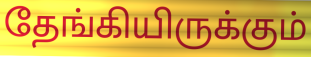
தேங்கியிருக்கும்